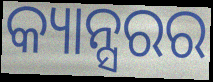
କ୍ୟାନ୍ସରର